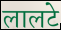
लालटे